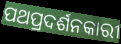
ପଥପ୍ରଦର୍ଶନକାରୀ